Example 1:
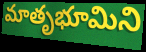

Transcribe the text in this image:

మాతృభూమిని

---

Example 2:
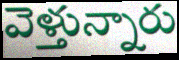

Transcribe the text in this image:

వెళ్తున్నారు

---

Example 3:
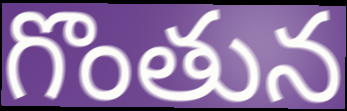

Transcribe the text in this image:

గొంతున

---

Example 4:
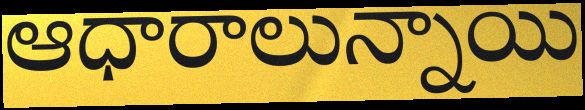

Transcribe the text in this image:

ఆధారాలున్నాయి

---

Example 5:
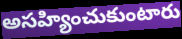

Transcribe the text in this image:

అసహ్యించుకుంటారు